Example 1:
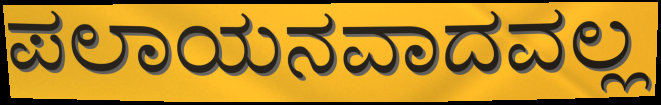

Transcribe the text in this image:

ಪಲಾಯನವಾದವಲ್ಲ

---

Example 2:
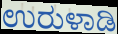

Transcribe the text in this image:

ಉರುಳಾಡಿ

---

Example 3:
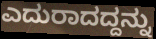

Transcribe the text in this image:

ಎದುರಾದದ್ದನ್ನು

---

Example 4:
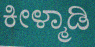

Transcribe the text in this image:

ಕೀಳ್ಮಾಡಿ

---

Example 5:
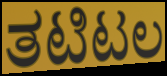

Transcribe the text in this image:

ತಟಿಟಲ